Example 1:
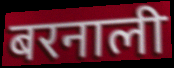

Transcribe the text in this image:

बरनाली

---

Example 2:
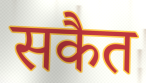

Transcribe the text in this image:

सकैत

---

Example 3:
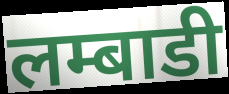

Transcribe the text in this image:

लम्बाडी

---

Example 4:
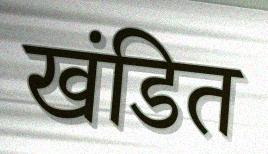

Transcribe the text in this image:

खंडित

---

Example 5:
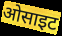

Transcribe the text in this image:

ओसाइट